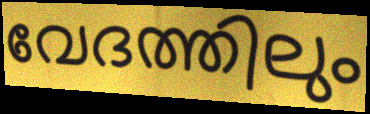
വേദത്തിലും